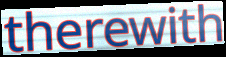
therewith